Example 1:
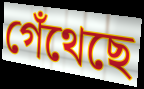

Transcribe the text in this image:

গেঁথেছে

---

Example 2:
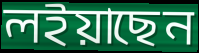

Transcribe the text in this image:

লইয়াছেন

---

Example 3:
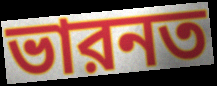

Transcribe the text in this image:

ভারনত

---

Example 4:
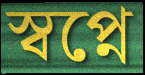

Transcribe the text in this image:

স্বপ্নে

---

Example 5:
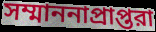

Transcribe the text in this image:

সম্মাননাপ্রাপ্তরা